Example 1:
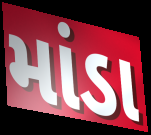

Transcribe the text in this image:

માંડા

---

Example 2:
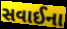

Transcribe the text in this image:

સવાઈના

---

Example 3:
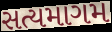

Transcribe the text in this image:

સત્યમાગમ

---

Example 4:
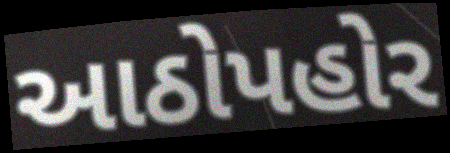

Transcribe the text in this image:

આઠોપહોર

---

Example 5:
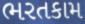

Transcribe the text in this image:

ભરતકામ